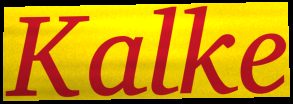
Kalke